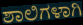
ಶಾಲಿಗಳಾಗಿ